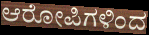
ಆರೋಪಿಗಳಿಂದ